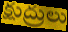
క్షుద్రులు